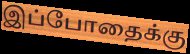
இப்போதைக்கு